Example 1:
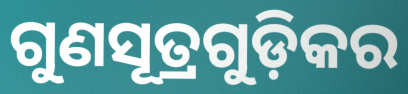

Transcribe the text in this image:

ଗୁଣସୂତ୍ରଗୁଡ଼ିକର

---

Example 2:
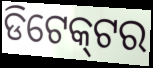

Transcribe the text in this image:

ଡିଟେକ୍‌ଟର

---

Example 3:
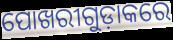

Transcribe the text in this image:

ପୋଖରୀଗୁଡ଼ାକରେ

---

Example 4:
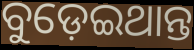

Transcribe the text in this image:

ବୁଡ଼େଇଥାନ୍ତ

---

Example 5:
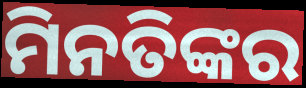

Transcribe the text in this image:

ମିନତିଙ୍କର